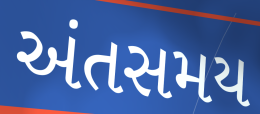
અંતસમય